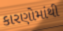
કારણોમાંથી